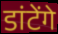
डांटेंगे